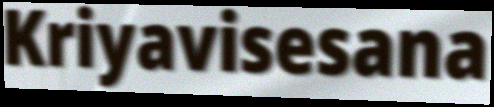
Kriyavisesana